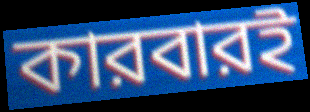
কারবারই